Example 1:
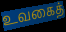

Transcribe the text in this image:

உவகைத்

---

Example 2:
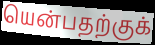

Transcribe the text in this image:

யென்பதற்குக்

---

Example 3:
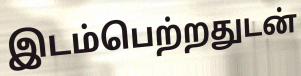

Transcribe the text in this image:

இடம்பெற்றதுடன்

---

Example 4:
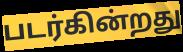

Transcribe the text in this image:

படர்கின்றது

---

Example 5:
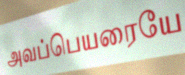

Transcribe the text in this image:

அவப்பெயரையே